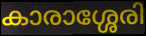
കാരാശ്ശേരി